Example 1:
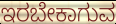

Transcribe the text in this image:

ಇರಬೇಕಾಗುವ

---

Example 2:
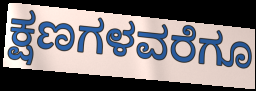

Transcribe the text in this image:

ಕ್ಷಣಗಳವರೆಗೂ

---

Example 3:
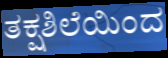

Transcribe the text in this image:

ತಕ್ಷಶಿಲೆಯಿಂದ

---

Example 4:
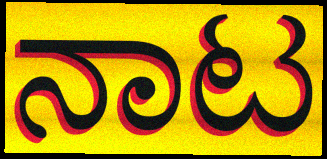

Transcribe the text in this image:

ನಾಟ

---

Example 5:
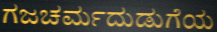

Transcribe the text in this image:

ಗಜಚರ್ಮದುಡುಗೆಯ